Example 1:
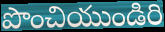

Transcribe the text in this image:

పొంచియుండిరి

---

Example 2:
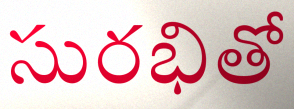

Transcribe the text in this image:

సురభితో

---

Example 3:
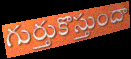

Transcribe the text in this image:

గుర్తుకొస్తుందా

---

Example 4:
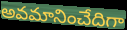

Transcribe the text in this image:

అవమానించేదిగా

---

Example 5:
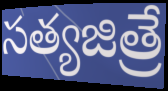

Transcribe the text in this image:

సత్యజిత్రే